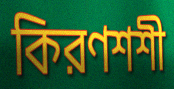
কিরণশশী